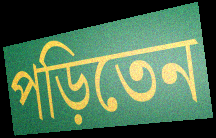
পড়িতেন